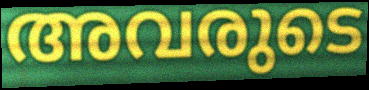
അവരുടെ